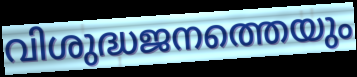
വിശുദ്ധജനത്തെയും